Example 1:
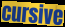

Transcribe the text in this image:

cursive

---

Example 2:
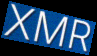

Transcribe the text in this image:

XMR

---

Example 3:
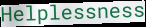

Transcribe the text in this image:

Helplessness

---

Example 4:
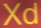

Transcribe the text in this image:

Xd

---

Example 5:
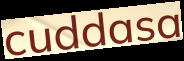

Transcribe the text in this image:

cuddasa